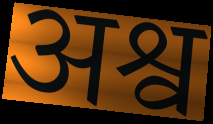
अश्व